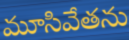
మూసివేతను